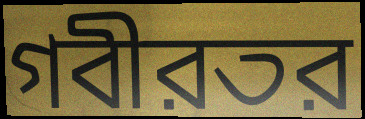
গবীরতর